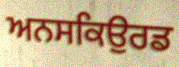
ਅਨਸਕਿਉਰਡ